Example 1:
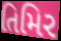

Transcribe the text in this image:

તિમિર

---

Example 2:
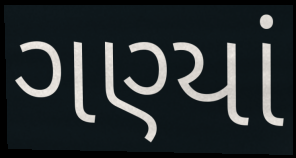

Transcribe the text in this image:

ગણ્યાં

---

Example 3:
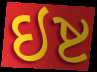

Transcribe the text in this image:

ઇષ્ટ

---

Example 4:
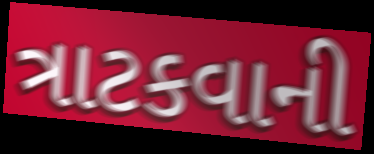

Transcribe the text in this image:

ત્રાટકવાની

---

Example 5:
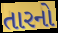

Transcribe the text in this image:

તારનો